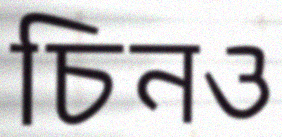
চিনও